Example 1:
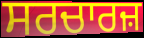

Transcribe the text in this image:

ਸਰਚਾਰਜ਼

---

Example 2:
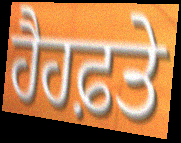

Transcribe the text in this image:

ਹੈਹਫ਼ਤੇ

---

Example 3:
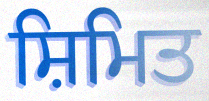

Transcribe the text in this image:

ਸ਼ਿਮਿਤ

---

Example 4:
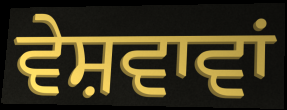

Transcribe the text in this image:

ਵੇਸ਼ਵਾਵਾਂ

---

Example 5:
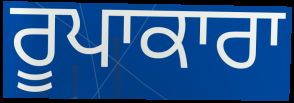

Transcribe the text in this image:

ਰੂਪਾਕਾਰਾ